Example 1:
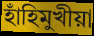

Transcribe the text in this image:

হাঁহিমুখীয়া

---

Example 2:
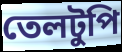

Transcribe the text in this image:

তেলটুপি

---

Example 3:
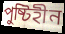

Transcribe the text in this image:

পুষ্টিহীন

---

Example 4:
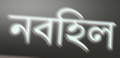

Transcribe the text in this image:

নবহিল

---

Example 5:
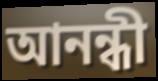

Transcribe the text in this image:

আনন্ধী